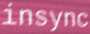
insync